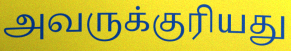
அவருக்குரியது